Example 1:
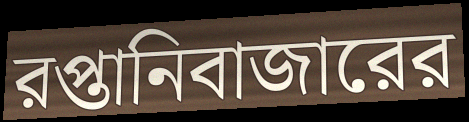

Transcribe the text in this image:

রপ্তানিবাজারের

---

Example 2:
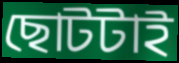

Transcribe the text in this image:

ছোটটাই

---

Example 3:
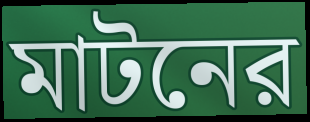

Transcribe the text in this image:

মাটনের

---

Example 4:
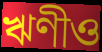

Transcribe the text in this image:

ঋণীও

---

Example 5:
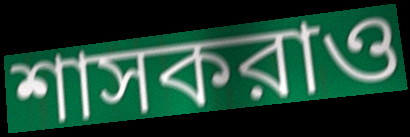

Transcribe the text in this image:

শাসকরাও